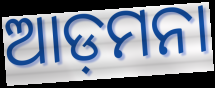
ଆଡ଼ମନା